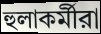
হুলাকর্মীরা